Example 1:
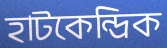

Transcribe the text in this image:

হাটকেন্দ্রিক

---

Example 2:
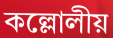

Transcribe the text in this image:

কল্লোলীয়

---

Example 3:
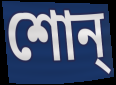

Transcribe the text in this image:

শোন্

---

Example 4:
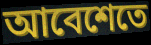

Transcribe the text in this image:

আবেশেতে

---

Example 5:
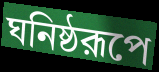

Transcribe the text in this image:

ঘনিষ্ঠরূপে